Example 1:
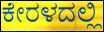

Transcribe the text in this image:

ಕೇರಳದಲ್ಲಿ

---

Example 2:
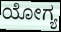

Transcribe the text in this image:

ಯೋಗ್ಯ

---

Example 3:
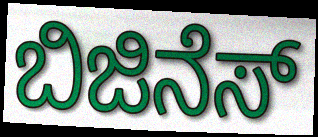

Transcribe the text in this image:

ಬಿಜಿನೆಸ್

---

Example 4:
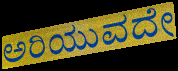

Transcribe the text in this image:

ಅರಿಯುವದೇ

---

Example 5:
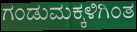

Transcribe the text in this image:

ಗಂಡುಮಕ್ಕಳಿಗಿಂತ